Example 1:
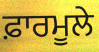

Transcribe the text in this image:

ਫ਼ਾਰਮੂਲੇ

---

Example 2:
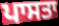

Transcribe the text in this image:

ਪਾਸਤਾ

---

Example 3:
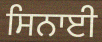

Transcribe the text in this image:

ਸਿਨਾਈ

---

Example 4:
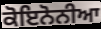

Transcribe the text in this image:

ਕੋਇਨੋਨੀਆ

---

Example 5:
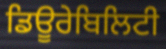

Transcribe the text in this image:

ਡਿਊਰੇਬਿਲਿਟੀ